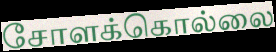
சோளக்கொல்லை